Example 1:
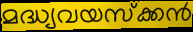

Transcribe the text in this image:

മദ്ധ്യവയസ്ക്കൻ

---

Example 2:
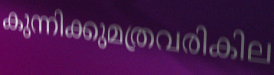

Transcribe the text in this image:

കുന്നിക്കുമത്രവരികില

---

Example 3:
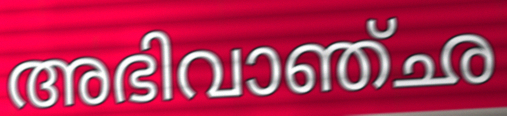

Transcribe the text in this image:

അഭിവാഞ്ഛ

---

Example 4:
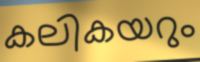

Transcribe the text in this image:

കലികയറും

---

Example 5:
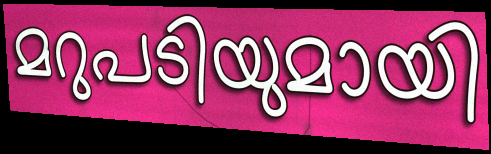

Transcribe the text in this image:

മറുപടിയുമായി